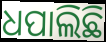
ଧପାଲିଛି